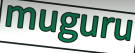
muguru